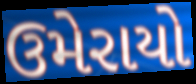
ઉમેરાયો